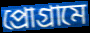
প্রোগ্রামে